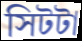
সিটটা